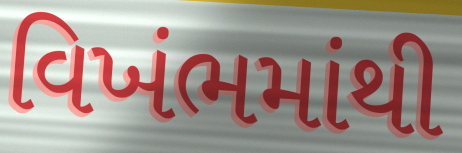
વિખંભમાંથી